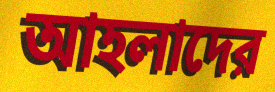
আহলাদের